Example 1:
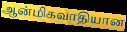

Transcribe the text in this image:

ஆன்மிகவாதியான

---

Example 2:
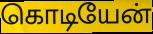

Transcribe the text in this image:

கொடியேன்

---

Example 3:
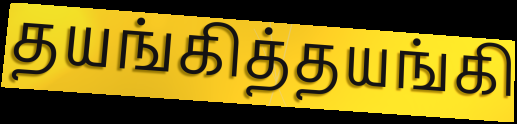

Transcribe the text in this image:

தயங்கித்தயங்கி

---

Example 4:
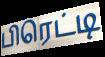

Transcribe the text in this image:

பிரெட்டி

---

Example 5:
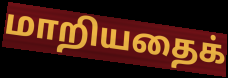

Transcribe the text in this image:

மாறியதைக்